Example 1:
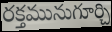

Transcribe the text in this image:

రక్తమునుగూర్చి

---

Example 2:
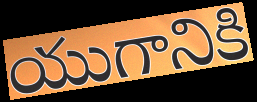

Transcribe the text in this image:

యుగానికి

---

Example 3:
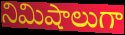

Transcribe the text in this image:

నిమిషాలుగా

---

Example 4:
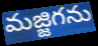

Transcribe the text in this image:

మజ్జిగను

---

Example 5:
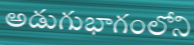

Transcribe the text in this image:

అడుగుభాగంలోని